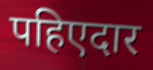
पहिएदार